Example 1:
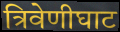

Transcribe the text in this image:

त्रिवेणीघाट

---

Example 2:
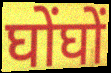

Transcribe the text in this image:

घोंघों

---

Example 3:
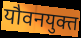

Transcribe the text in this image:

यौवनयुक्त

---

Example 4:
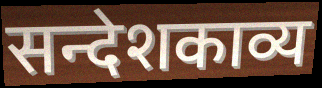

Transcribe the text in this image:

सन्देशकाव्य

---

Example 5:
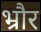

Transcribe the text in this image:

भ्रौर